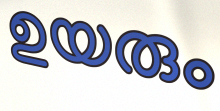
ഉയരും